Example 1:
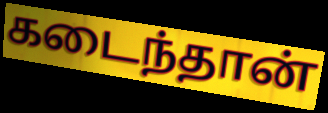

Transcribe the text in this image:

கடைந்தான்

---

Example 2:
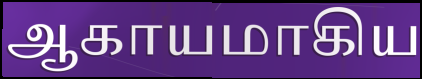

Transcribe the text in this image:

ஆகாயமாகிய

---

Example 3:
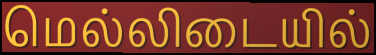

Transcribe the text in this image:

மெல்லிடையில்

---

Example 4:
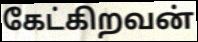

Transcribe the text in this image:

கேட்கிறவன்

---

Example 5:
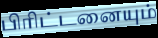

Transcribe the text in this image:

பிரிட்டனையும்